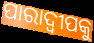
ପାରାଦ୍ୱୀପକୁ